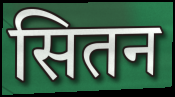
सितन